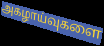
அகழாய்வுகளை